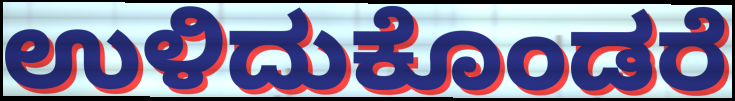
ಉಳಿದುಕೊಂಡರೆ